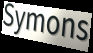
Symons